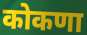
कोकणा